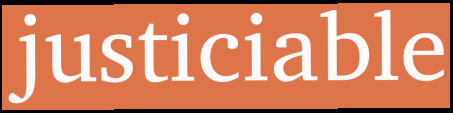
justiciable